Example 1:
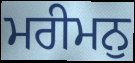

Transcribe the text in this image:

ਮਰੀਮਨੁ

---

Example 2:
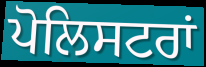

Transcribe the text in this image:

ਪੋਲਿਸਟਰਾਂ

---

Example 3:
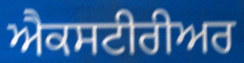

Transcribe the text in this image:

ਐਕਸਟੀਰੀਅਰ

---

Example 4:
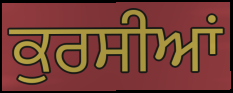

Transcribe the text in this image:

ਕੁਰਸੀਆਂ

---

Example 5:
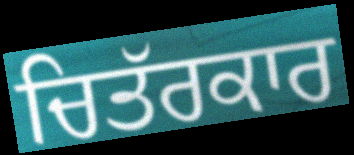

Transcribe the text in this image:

ਚਿਤੱਰਕਾਰ